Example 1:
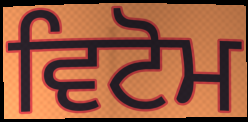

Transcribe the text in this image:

ਵਿਟੋਮ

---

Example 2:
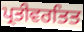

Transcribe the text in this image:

ਪ੍ਰਤੀਵਰਤਿਤ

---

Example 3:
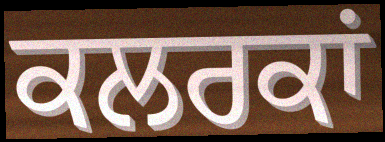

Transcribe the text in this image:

ਕਲਰਕਾਂ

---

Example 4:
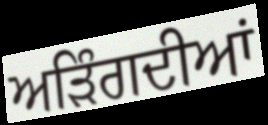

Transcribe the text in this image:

ਅੜਿੰਗਦੀਆਂ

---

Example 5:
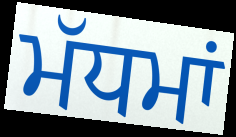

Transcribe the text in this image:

ਮੱਧਮਾਂ